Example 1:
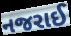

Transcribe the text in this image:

નજરાઈ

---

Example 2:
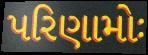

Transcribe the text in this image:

પરિણામોઃ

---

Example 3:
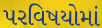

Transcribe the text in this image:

પરવિષયોમાં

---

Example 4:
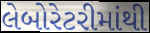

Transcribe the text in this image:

લેબોરેટરીમાંથી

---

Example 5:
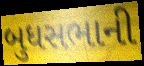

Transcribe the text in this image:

બુધસભાની